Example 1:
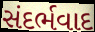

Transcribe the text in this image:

સંદર્ભવાદ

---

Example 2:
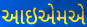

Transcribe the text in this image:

આઇએમએ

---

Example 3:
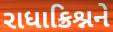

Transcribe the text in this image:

રાધાક્રિશ્નને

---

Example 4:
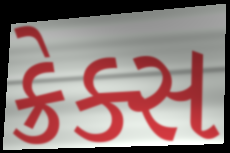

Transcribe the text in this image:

ક્રેક્સ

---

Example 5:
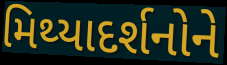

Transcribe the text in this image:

મિથ્યાદર્શનોને